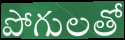
పోగులతో